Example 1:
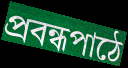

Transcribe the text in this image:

প্রবন্ধপাঠে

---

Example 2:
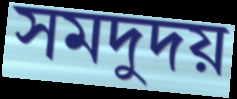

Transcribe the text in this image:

সমদুদয়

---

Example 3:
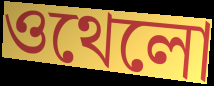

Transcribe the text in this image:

ওথেলো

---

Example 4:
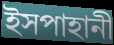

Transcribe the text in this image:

ইসপাহানী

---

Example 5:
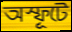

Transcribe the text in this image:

অস্ফূটে